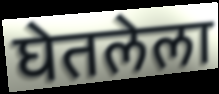
घेतलेला